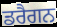
ਡਰੈਗਨ